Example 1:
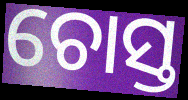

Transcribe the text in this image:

ଚୋସ୍ତ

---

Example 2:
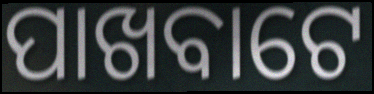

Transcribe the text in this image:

ପାଖବାଟେ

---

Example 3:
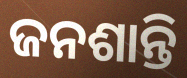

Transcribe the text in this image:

ଜନଶାନ୍ତି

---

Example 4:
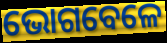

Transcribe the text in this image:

ଭୋଗବେଳେ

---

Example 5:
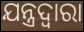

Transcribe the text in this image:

ଯନ୍ତ୍ରଦ୍ଵାରା